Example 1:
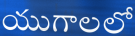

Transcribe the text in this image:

యుగాలలో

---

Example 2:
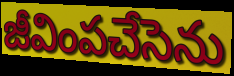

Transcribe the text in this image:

జీవింపచేసెను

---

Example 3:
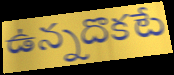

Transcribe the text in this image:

ఉన్నదొకటే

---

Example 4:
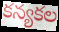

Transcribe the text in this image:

కన్యకల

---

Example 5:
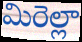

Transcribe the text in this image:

మిరెల్లా